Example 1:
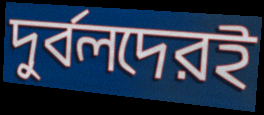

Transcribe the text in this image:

দুর্বলদেরই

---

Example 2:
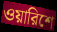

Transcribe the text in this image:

ওয়ারিশে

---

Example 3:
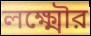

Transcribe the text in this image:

লক্ষ্মৌর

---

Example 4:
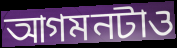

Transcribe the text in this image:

আগমনটাও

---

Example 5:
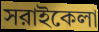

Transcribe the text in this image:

সরাইকেলা